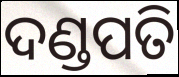
ଦଣ୍ଡପତି